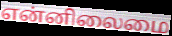
என்னிலைமை